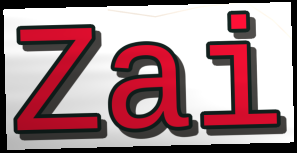
Zai